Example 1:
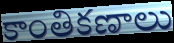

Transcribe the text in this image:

కాంతికణాలు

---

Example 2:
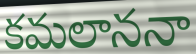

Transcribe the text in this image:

కమలాననా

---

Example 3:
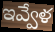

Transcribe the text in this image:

ఇవ్వేళ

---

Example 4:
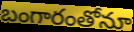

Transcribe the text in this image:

బంగారంతోనూ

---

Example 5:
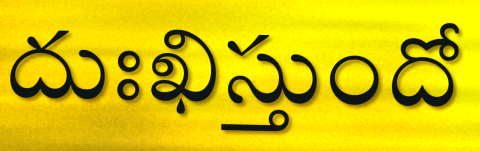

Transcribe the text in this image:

దుఃఖిస్తుందో